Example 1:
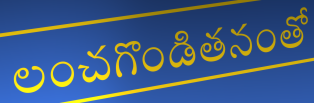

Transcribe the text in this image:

లంచగొండితనంతో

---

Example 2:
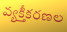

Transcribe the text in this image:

వ్యక్తీకరణల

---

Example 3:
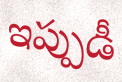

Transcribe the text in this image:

ఇప్పుడీ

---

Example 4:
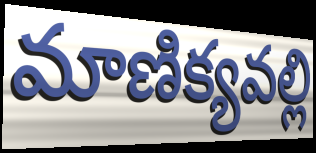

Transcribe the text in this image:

మాణిక్యవల్లి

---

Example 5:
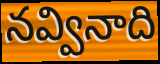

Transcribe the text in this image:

నవ్వినాది